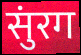
सुंरग